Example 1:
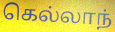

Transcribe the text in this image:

கெல்லாந்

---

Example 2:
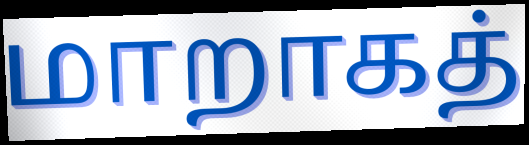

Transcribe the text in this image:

மாறாகத்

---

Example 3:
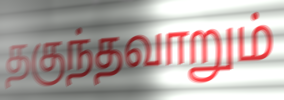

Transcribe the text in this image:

தகுந்தவாறும்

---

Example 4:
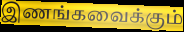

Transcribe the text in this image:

இணங்கவைக்கும்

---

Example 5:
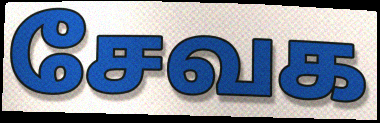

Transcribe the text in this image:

சேவக